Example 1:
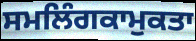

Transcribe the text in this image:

ਸਮਲਿੰਗਕਾਮੁਕਤਾ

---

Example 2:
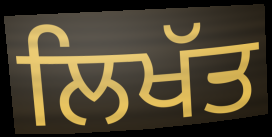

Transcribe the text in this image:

ਲਿਖੱਤ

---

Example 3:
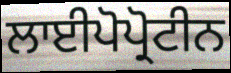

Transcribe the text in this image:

ਲਾਈਪੋਪ੍ਰੋਟੀਨ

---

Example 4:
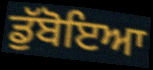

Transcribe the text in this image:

ਡੁੱਬੋਇਆ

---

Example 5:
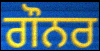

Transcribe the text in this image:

ਗੌਨਰ